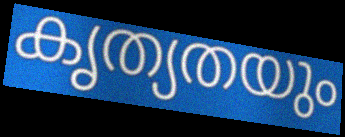
കൃത്യതയും